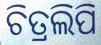
ଚିତ୍ରଲିପି